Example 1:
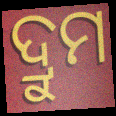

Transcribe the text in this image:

ଦ୍ରୁମ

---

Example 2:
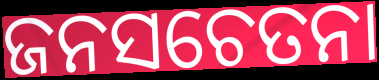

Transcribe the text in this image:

ଜନସଚେତନା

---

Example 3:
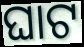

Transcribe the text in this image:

ଘାଟ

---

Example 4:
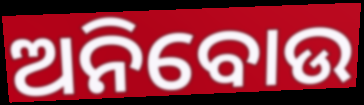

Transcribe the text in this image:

ଅନିବୋଉ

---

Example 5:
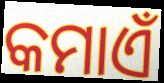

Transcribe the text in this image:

କମାଏଁ